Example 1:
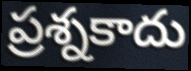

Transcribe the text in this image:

ప్రశ్నకాదు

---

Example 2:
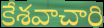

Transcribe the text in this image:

కేశవాచారి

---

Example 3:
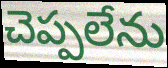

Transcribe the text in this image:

చెప్పలేను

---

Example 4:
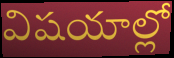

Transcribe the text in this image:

విషయాల్లో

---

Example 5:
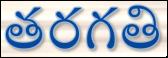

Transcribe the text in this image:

తరగతి